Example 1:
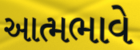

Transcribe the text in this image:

આત્મભાવે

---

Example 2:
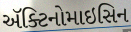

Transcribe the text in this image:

ઍક્ટિનોમાઇસિન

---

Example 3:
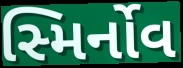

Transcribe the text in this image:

સ્મિર્નોવ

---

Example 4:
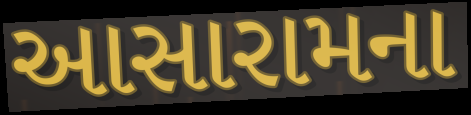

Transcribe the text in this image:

આસારામના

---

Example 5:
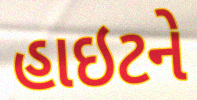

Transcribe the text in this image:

હાઇટને